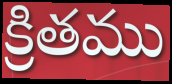
క్రితము